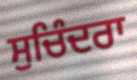
ਸੁਚਿੰਦਰਾ